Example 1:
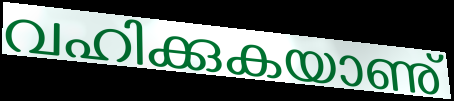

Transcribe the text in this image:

വഹിക്കുകയാണു്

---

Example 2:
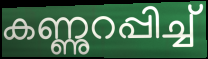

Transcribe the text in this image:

കണ്ണുറപ്പിച്ച്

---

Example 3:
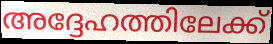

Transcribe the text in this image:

അദ്ദേഹത്തിലേക്ക്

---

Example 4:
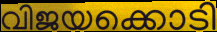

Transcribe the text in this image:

വിജയക്കൊടി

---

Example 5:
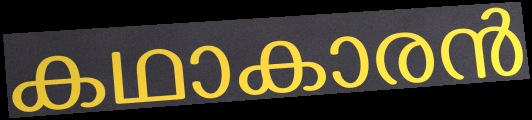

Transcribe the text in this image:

കഥാകാരൻ